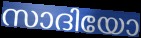
സാദിയോ